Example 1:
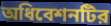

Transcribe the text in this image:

অধিবেশনটির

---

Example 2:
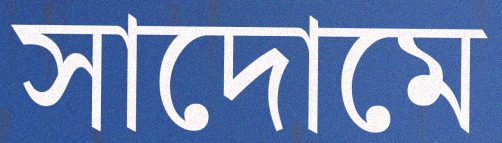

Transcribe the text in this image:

সাদোমে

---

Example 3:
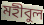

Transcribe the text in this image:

মহীবুল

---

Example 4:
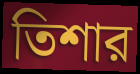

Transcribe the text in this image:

তিশার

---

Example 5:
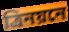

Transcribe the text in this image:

ত্রিনয়নে